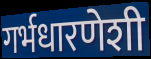
गर्भधारणेशी